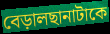
বেড়ালছানাটাকে